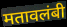
मतावलंबी